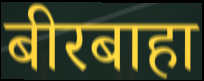
बीरबाहा